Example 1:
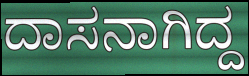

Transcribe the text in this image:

ದಾಸನಾಗಿದ್ದ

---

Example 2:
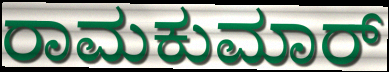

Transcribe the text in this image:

ರಾಮಕುಮಾರ್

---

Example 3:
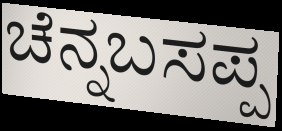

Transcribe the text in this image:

ಚೆನ್ನಬಸಪ್ಪ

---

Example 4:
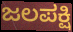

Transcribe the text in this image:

ಜಲಪಕ್ಷಿ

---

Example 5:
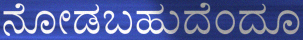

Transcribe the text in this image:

ನೋಡಬಹುದೆಂದೂ